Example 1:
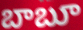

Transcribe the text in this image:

బాబూ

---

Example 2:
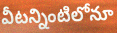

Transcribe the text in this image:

వీటన్నింటిలోనూ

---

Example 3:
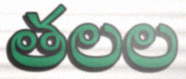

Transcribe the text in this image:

తలల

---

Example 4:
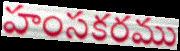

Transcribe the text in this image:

హంసకరము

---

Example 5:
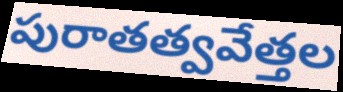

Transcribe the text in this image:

పురాతత్వవేత్తల